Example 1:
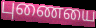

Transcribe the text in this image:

புணையை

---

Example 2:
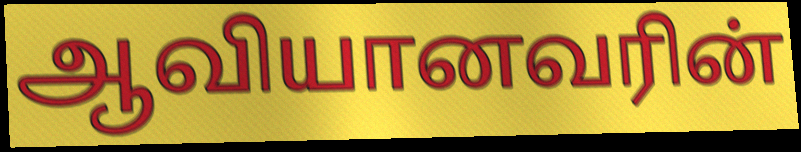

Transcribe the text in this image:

ஆவியானவரின்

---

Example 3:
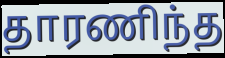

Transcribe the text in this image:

தாரணிந்த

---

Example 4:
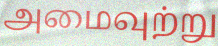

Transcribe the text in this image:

அமைவுற்று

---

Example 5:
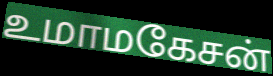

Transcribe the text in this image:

உமாமகேசன்